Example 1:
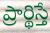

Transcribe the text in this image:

ప్రార్థిస్తే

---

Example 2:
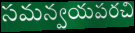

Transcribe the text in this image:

సమన్వయపరచి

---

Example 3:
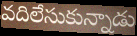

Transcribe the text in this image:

వదిలేసుకున్నాడు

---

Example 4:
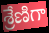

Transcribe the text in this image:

శ్రేణిగా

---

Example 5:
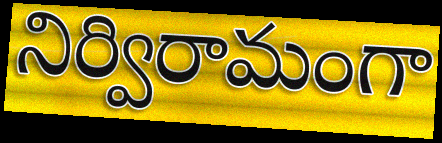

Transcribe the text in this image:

నిర్విరామంగా